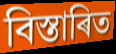
বিস্তাৰিত